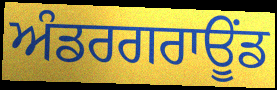
ਅੰਡਰਗਰਾਊੰਡ